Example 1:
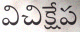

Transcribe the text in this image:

విచిక్షేప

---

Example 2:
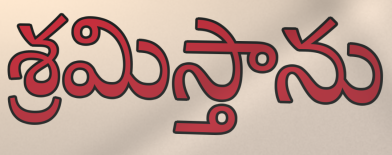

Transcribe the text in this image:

శ్రమిస్తాను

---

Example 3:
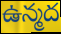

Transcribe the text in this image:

ఉన్మద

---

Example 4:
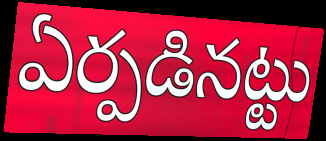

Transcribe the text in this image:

ఏర్పడినట్టు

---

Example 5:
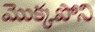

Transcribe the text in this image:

మొక్కపోని